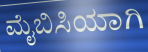
ಮೈಬಿಸಿಯಾಗಿ